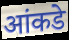
आंकडे